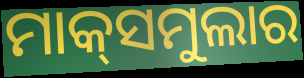
ମାକ୍‌ସମୁଲାର